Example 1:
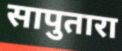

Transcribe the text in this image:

सापुतारा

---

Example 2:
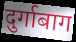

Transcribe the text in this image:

दुर्गाबाग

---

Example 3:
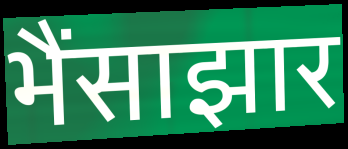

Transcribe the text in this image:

भैंसाझार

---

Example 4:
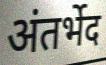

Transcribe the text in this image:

अंतर्भेद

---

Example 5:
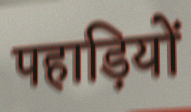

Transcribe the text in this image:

पहाड़ियों